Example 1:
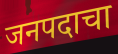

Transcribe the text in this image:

जनपदाचा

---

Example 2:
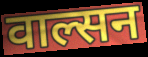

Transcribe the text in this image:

वाल्सन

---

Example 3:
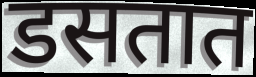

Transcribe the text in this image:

डसतात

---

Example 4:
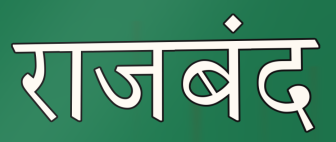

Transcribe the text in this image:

राजबंद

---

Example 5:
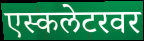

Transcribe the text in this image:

एस्कलेटरवर